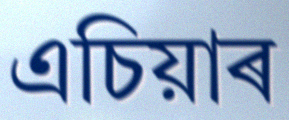
এচিয়াৰ